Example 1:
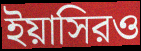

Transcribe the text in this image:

ইয়াসিরও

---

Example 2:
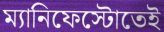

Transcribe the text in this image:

ম্যানিফেস্টোতেই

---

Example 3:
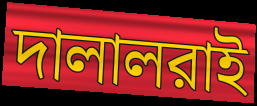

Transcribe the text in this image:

দালালরাই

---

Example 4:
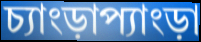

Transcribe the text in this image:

চ্যাংড়াপ্যাংড়া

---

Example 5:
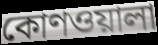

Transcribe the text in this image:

কোণওয়ালা